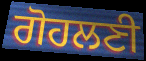
ਗੋਹਲਣੀ